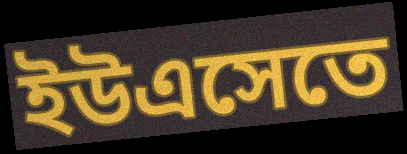
ইউএসেতে